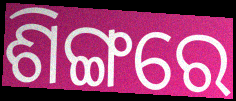
ଶିଙ୍ଗରେ